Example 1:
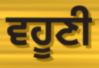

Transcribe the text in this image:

ਵਹੂਣੀ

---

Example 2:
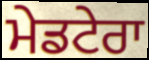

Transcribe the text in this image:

ਮੇਡਟੇਰਾ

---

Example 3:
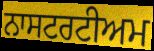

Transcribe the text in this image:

ਨਾਸਟਰਟੀਅਮ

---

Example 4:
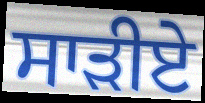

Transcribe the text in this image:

ਸਾੜੀਏ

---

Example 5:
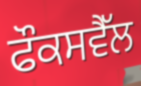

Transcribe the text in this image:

ਫੌਕਸਵੈੱਲ